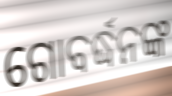
ଗୋବର୍ଦ୍ଧନଙ୍କ